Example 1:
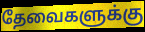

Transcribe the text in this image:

தேவைகளுக்கு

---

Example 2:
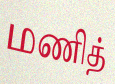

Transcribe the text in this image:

மணித்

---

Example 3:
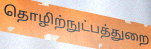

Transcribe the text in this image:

தொழிற்நுட்பத்துறை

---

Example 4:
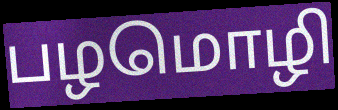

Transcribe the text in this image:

பழமொழி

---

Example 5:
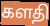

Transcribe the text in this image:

களதி